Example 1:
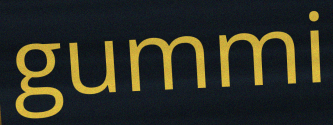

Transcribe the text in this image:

gummi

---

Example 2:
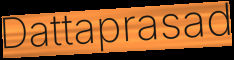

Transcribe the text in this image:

Dattaprasad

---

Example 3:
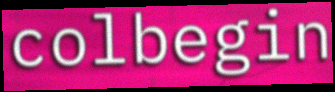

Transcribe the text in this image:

colbegin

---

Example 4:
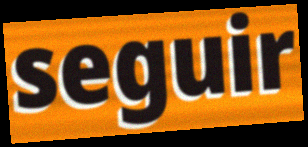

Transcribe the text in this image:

seguir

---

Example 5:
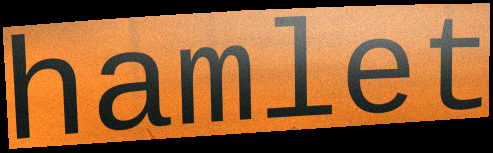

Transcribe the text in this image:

hamlet